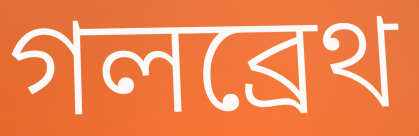
গলব্রেথ